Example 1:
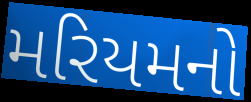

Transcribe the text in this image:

મરિયમનો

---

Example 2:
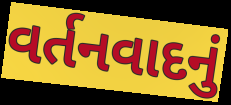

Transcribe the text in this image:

વર્તનવાદનું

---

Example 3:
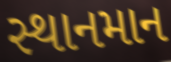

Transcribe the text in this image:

સ્થાનમાન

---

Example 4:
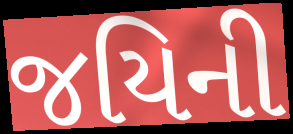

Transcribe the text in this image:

જયિની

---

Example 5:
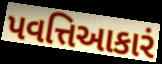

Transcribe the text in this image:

પવત્તિઆકારં